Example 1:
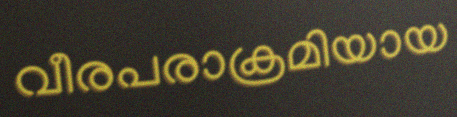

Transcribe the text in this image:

വീരപരാക്രമിയായ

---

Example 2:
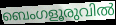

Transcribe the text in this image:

ബെംഗളൂരുവിൽ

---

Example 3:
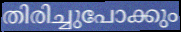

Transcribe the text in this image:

തിരിച്ചുപോക്കും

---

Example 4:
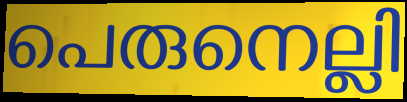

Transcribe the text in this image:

പെരുനെല്ലി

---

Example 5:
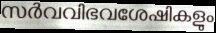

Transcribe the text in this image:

സർവവിഭവശേഷികളും